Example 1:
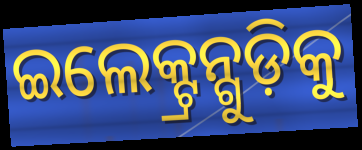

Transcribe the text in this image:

ଇଲେକ୍ଟ୍ରନ୍ଗୁଡ଼ିକୁ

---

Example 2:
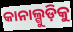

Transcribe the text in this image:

କାନାଲ୍ଗୁଡ଼ିକୁ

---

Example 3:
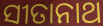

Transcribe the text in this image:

ସୀତାନାଥ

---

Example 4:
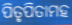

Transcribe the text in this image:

ପିତୃପିତାମହ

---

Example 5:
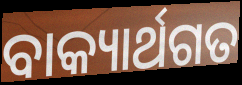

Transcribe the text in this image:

ବାକ୍ୟାର୍ଥଗତ